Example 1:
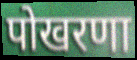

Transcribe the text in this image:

पोखरणा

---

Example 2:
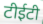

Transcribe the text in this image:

टीईटी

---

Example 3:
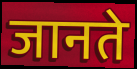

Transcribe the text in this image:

जानते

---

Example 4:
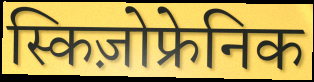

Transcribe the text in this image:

स्किज़ोफ्रेनिक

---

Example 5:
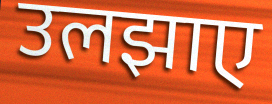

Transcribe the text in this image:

उलझाए